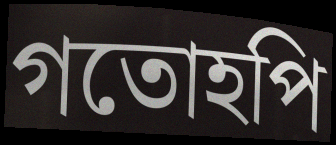
গতোহপি